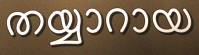
തയ്യാറായ